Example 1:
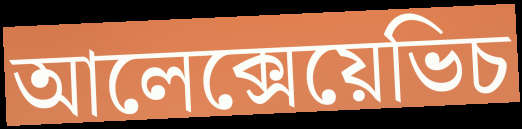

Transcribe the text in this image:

আলেক্সেয়েভিচ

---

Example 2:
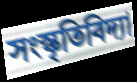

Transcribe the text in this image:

সংস্কৃতিবিদ্য়া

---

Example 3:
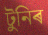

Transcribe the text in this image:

টুনিৰ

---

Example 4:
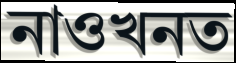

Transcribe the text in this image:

নাওখনত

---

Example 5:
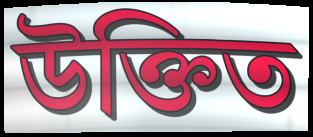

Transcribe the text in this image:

উক্তিত